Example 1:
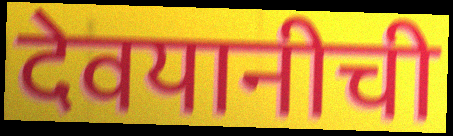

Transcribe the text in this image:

देवयानीची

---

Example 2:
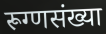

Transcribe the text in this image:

रूग्णसंख्या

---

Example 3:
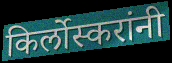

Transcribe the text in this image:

किर्लोस्करांनी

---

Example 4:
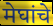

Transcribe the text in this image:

मेघांचे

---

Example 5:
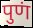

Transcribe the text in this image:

पुणं